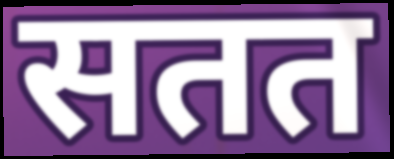
सतत